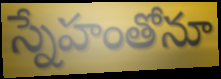
స్నేహంతోనూ